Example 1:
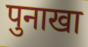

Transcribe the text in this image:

पुनाखा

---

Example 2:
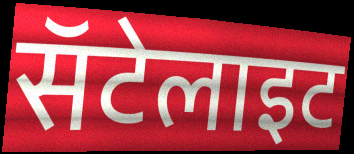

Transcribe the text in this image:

सॅटेलाइट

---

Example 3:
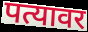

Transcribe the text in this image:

पत्यावर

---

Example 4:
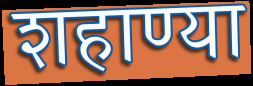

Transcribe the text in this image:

शहाण्या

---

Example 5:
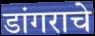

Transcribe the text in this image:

डांगराचे